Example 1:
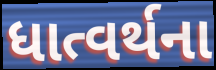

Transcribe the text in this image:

ધાત્વર્થના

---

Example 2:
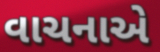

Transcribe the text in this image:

વાચનાએ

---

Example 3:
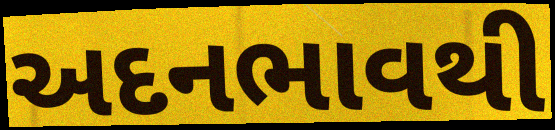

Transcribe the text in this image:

અદનભાવથી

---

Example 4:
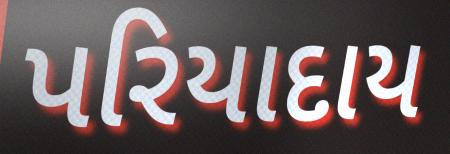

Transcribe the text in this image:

પરિયાદાય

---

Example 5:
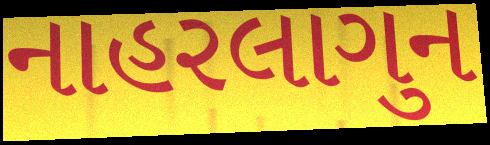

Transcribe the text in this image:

નાહરલાગુન